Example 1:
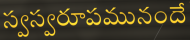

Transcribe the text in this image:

స్వస్వరూపమునందే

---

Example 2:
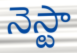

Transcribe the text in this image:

నెస్టా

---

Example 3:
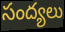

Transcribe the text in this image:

సంద్యలు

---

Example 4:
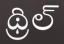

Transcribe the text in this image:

థ్రిల్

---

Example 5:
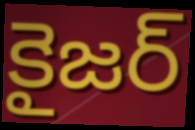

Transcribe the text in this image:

కైజర్